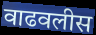
वाढवलीस